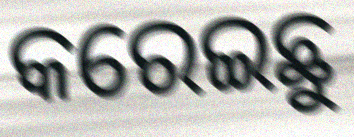
କରେଇଛୁ